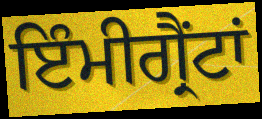
ਇੰਮੀਗ੍ਰੈਂਟਾਂ